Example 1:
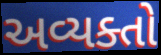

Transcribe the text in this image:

અવ્યક્તો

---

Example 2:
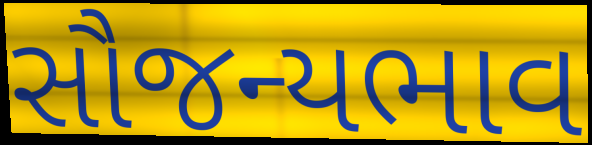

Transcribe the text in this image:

સૌજન્યભાવ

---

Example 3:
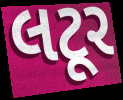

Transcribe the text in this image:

લટૂર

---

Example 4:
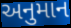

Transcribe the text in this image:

અનુમાન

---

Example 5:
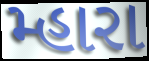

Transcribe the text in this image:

મ્હારા